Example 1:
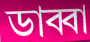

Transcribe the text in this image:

ডাব্বা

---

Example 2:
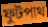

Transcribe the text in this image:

ফুটপাথ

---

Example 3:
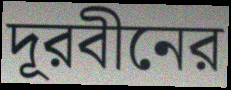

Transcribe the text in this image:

দূরবীনের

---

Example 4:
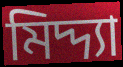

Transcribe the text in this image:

মিদ্দ্যা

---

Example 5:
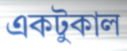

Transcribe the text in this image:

একটুকাল